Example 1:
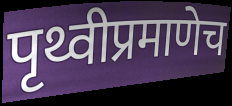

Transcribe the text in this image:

पृथ्वीप्रमाणेच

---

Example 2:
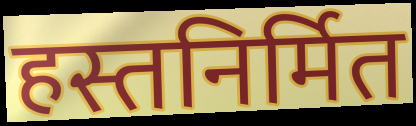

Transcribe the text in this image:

हस्तनिर्मित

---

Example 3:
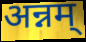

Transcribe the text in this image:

अन्नम्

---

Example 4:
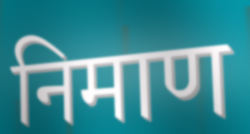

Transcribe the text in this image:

निमाण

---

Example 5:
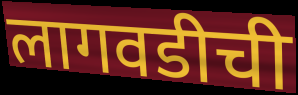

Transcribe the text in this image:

लागवडीची